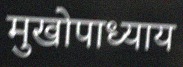
मुखोपाध्याय